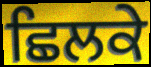
ਛਿਲਕੇ